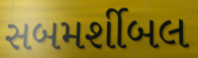
સબમર્શીબલ